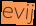
evij